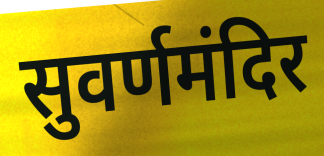
सुवर्णमंदिर